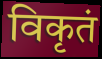
विकृतं